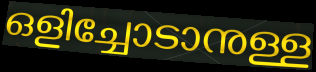
ഒളിച്ചോടാനുള്ള